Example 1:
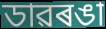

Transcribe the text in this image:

ডাৱৰঙা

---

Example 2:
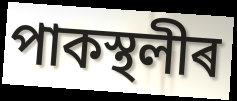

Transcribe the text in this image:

পাকস্থলীৰ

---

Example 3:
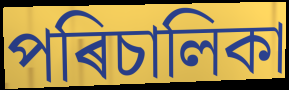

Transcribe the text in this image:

পৰিচালিকা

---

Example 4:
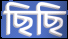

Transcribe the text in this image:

ছিছি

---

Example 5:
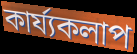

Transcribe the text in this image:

কাৰ্য্যকলাপ